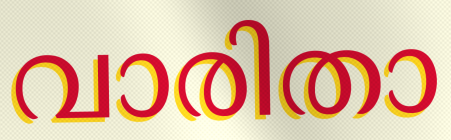
വാരിതാ